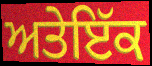
ਅਤੇਇੱਕ